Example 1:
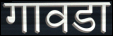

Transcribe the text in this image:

गावडा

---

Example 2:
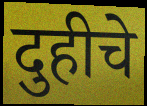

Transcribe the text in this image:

दुहीचे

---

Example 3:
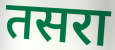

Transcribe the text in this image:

तसरा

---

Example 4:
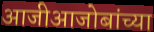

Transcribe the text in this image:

आजीआजोबांच्या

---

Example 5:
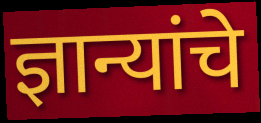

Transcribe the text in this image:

ज्ञान्यांचे